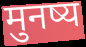
मुनष्य